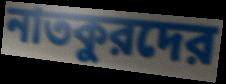
নাতকুরদের